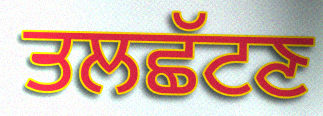
ਤਲਛੱਟਣ